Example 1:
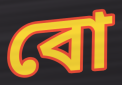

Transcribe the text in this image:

বো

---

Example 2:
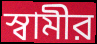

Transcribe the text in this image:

স্বামীর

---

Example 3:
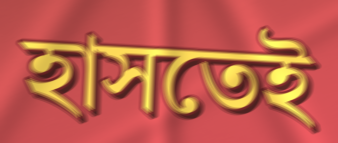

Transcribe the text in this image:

হাসতেই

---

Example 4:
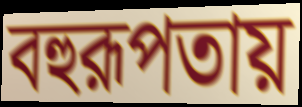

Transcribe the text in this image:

বহুরূপতায়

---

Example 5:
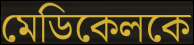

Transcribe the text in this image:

মেডিকেলকে